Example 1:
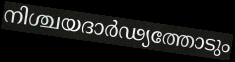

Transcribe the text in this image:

നിശ്ചയദാർഢ്യത്തോടും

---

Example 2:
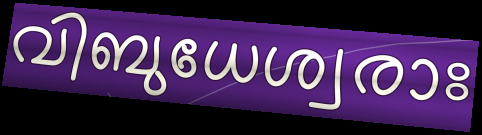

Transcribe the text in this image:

വിബുധേശ്വരാഃ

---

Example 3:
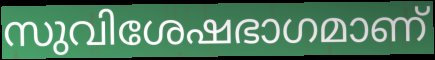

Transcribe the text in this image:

സുവിശേഷഭാഗമാണ്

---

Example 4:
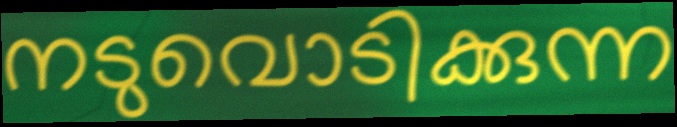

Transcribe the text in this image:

നടുവൊടിക്കുന്ന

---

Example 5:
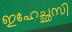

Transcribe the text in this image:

ഇഹേച്ഛസി